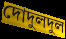
দোদুলদুল